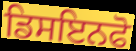
ਡਿਸਇਨਫੋ